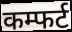
कम्फर्ट